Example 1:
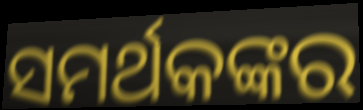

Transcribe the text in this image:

ସମର୍ଥକଙ୍କର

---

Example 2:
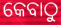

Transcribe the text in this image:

କେବାଠୁ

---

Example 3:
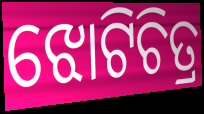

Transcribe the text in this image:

ଝୋଟିଚିତ୍ର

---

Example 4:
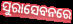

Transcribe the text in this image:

ସୁରାସେବନରେ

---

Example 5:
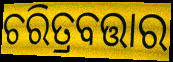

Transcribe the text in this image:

ଚରିତ୍ରବତ୍ତାର